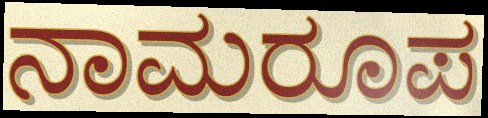
ನಾಮರೂಪ